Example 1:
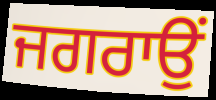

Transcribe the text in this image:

ਜਗਰਾਉਂ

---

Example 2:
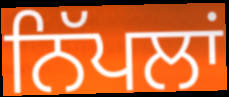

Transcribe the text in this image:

ਨਿੱਪਲਾਂ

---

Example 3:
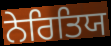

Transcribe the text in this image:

ਨੇਰਿਤਿਯ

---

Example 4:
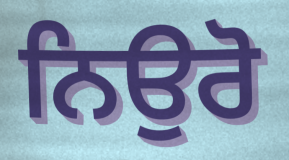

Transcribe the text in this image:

ਨਿਉਰੋ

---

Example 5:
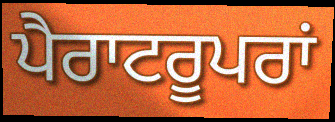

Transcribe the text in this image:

ਪੈਰਾਟਰੂਪਰਾਂ